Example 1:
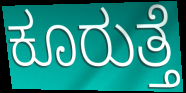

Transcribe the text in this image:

ಕೂರುತ್ತೆ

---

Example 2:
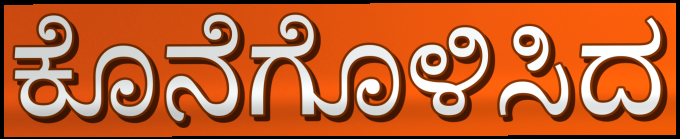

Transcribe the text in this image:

ಕೊನೆಗೊಳಿಸಿದ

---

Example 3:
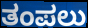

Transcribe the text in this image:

ತಂಪಲು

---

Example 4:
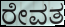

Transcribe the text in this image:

ರೇವತ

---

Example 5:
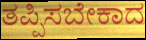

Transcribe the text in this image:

ತಪ್ಪಿಸಬೇಕಾದ